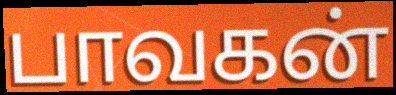
பாவகன்